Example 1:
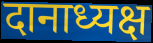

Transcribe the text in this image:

दानाध्यक्ष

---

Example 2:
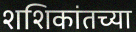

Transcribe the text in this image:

शशिकांतच्या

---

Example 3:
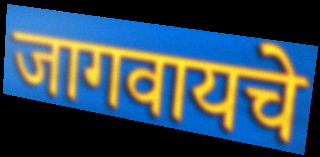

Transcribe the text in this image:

जागवायचे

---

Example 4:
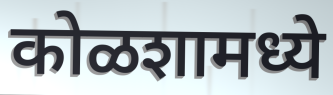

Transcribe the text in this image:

कोळशामध्ये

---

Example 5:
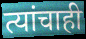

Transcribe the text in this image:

त्यांचाही